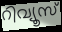
റിവ്യൂസ്